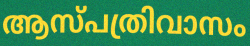
ആസ്പത്രിവാസം